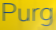
Purg